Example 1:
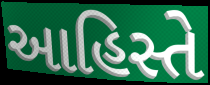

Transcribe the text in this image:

આહિસ્તે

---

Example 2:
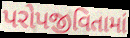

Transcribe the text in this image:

પરોપજીવિતામાં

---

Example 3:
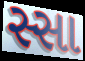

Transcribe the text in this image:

સ્સા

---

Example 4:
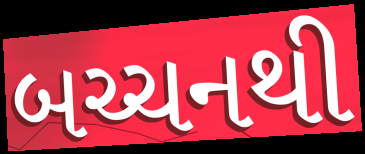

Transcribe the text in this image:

બચ્ચનથી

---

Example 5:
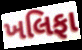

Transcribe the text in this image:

ખલિફા